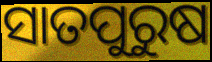
ସାତପୁରୁଷ